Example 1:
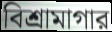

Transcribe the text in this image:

বিশ্রামাগার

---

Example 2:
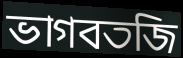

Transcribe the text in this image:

ভাগবতজি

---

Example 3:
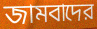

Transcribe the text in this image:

জামবাদের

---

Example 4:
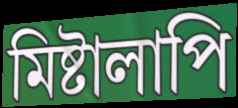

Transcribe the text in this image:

মিষ্টালাপি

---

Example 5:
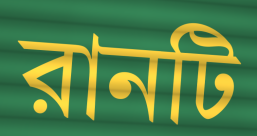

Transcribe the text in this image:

রানটি